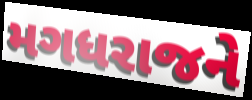
મગધરાજને